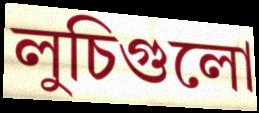
লুচিগুলো